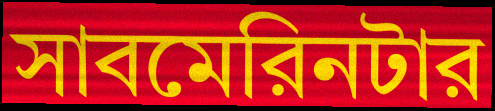
সাবমেরিনটার